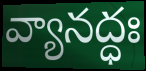
వ్యానద్ధః